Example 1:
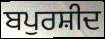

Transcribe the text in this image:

ਬਪੁਰਸ਼ੀਦ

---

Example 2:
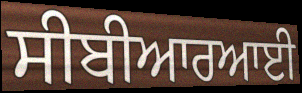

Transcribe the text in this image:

ਸੀਬੀਆਰਆਈ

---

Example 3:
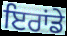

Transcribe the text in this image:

ਇਰਾਂਡੇ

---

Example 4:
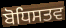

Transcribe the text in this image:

ਬੋਧਿਸਤਵ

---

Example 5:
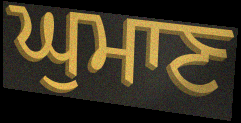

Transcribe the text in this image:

ਘੁਮਾਣ